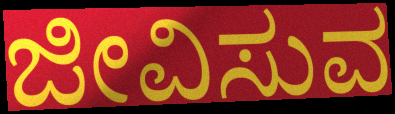
ಜೀವಿಸುವ